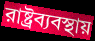
রাষ্ট্রব্যবস্থায়